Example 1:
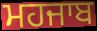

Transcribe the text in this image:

ਮਹਜਾਬ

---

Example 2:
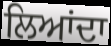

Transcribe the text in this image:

ਲਿਆਂਦਾ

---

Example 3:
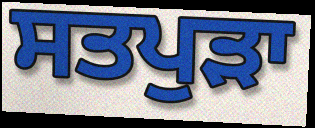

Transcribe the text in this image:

ਸਤਪੁੜਾ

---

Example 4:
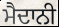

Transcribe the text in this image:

ਮੈਦਾਨੀ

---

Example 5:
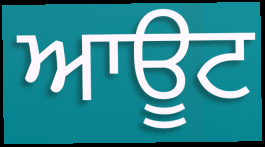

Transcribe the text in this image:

ਆਊਟ